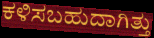
ಕಳಿಸಬಹುದಾಗಿತ್ತು